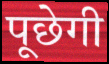
पूछेगी